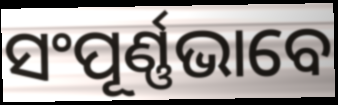
ସଂପୂର୍ଣ୍ଣଭାବେ